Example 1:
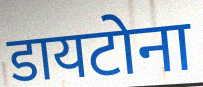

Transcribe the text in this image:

डायटोना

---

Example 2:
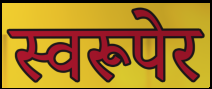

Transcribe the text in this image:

स्वरूपेर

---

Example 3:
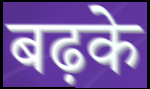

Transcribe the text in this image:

बढ़के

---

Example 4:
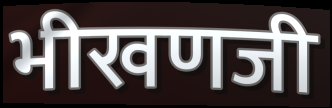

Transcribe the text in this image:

भीखणजी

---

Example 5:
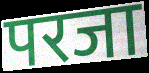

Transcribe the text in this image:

परजा